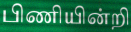
பிணியின்றி